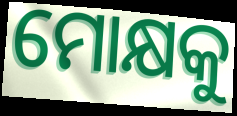
ମୋକ୍ଷକୁ